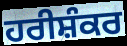
ਹਰੀਸ਼ੰਕਰ